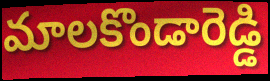
మాలకొండారెడ్డి